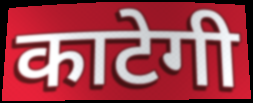
काटेगी